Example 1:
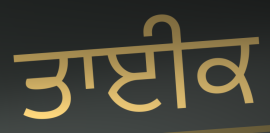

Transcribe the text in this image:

ਤਾਈਕ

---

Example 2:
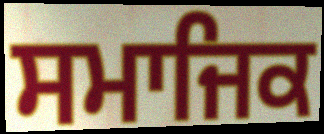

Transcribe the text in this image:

ਸਮਾਜਿਕ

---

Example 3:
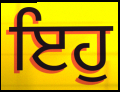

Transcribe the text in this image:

ਇਹੁ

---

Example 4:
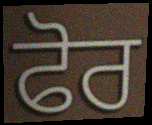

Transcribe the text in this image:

ਫੋਰ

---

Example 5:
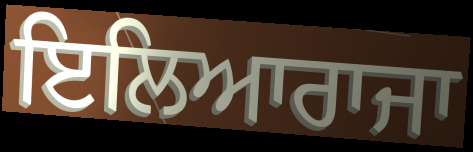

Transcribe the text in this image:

ਇਲਿਆਰਾਜਾ